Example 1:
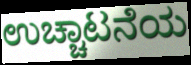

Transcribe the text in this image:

ಉಚ್ಚಾಟನೆಯ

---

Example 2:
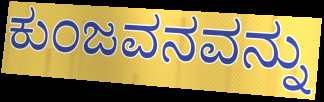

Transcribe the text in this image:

ಕುಂಜವನವನ್ನು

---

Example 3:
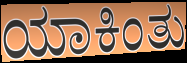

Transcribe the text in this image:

ಯಾಕಿಂತು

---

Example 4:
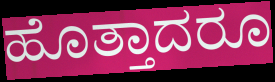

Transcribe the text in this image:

ಹೊತ್ತಾದರೂ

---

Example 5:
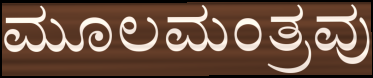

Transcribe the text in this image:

ಮೂಲಮಂತ್ರವು